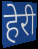
हेरी